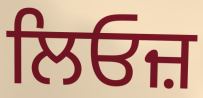
ਲਿਓਜ਼